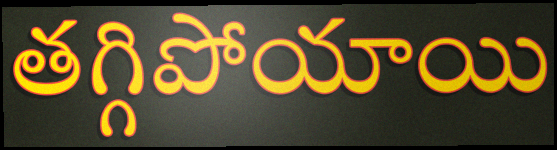
తగ్గిపోయాయి